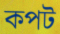
কপট